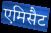
एमिसैट